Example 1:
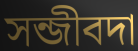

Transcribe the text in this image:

সন্জীবদা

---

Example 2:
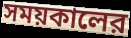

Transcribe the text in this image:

সময়কালের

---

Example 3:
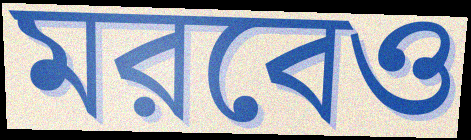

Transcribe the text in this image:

মরবেও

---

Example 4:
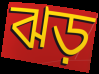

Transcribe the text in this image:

ঝড়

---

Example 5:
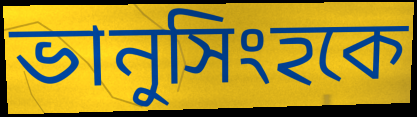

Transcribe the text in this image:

ভানুসিংহকে